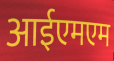
आईएमएम